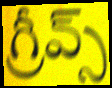
గ్రీవ్స్